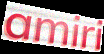
amiri